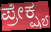
ಪ್ರೇಕ್ಷ್ಯ